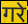
गरे